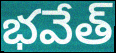
భవేత్